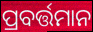
ପ୍ରବର୍ତ୍ତମାନ